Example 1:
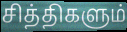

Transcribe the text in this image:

சித்திகளும்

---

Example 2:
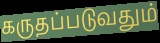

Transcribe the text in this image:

கருதப்படுவதும்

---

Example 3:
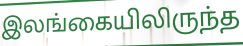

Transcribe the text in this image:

இலங்கையிலிருந்த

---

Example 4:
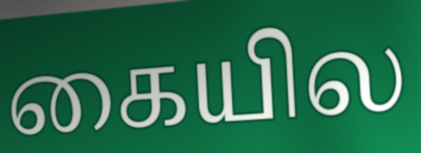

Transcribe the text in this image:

கையில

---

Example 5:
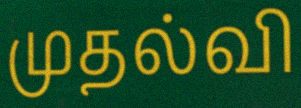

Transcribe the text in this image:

முதல்வி